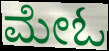
ಮೇಓ